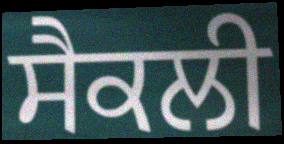
ਸੈਕਲੀ